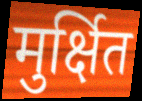
मुर्क्षित